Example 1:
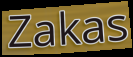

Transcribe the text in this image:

Zakas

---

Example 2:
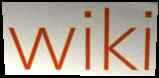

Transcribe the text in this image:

wiki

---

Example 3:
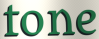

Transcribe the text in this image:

tone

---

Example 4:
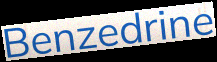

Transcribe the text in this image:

Benzedrine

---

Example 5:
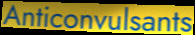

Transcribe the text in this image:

Anticonvulsants